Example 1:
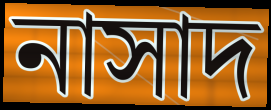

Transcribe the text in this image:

নাসাদ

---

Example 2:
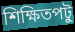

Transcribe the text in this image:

শিক্ষিতপটু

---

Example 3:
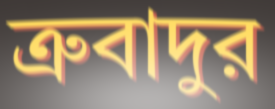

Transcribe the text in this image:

ত্রুবাদুর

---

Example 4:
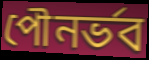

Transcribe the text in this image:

পৌনর্ভব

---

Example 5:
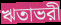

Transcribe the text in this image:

ঋতাভরী